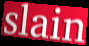
slain